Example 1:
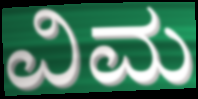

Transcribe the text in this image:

ವಿಮ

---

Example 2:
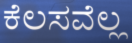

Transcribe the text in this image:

ಕೆಲಸವೆಲ್ಲ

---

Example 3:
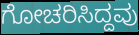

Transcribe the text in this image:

ಗೋಚರಿಸಿದ್ದವು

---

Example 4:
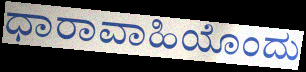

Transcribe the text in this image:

ಧಾರಾವಾಹಿಯೊಂದು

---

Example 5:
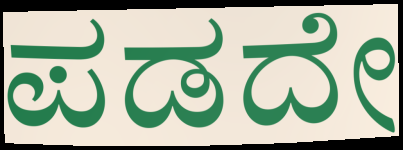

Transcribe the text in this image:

ಪಡದೇ